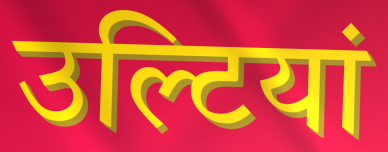
उल्‍टियां